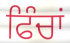
ਫਿੰਚਾਂ